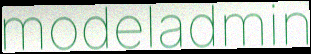
modeladmin